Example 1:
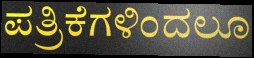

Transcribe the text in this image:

ಪತ್ರಿಕೆಗಳಿಂದಲೂ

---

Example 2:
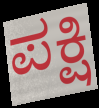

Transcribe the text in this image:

ಪಕ್ಷಿ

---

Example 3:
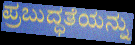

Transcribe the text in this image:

ಪ್ರಬುದ್ಧತೆಯನ್ನು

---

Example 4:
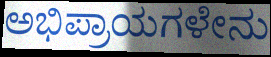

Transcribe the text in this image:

ಅಭಿಪ್ರಾಯಗಳೇನು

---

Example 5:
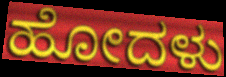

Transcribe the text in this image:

ಹೋದಳು